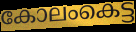
കോലംകെട്ട